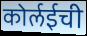
कोर्लईची